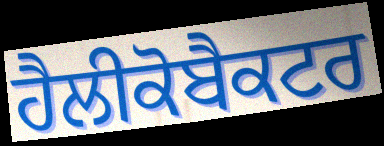
ਹੈਲੀਕੋਬੈਕਟਰ